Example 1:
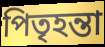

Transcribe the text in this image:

পিতৃহন্তা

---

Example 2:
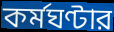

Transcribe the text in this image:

কর্মঘণ্টার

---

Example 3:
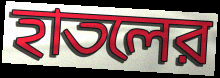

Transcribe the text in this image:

হাতলের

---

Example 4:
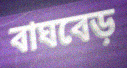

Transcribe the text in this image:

বাঘবেড়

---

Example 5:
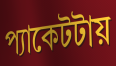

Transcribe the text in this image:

প্যাকেটটায়